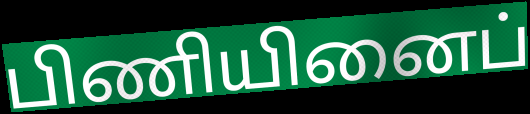
பிணியினைப்